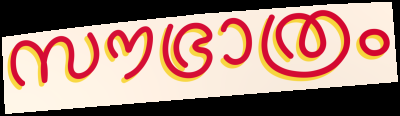
സൗഭ്രാത്രം